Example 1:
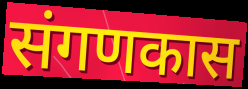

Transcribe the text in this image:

संगणकास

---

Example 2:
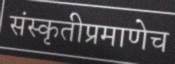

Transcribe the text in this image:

संस्कृतीप्रमाणेच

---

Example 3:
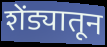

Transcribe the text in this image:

शेंड्यातून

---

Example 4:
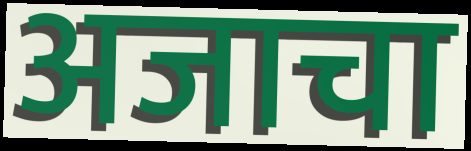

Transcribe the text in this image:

अजाचा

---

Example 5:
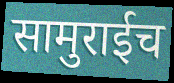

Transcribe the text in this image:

सामुराईच